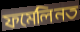
ফৰ্মেলিনত